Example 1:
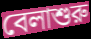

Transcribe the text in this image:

বেলাশুরু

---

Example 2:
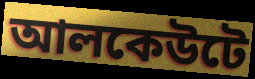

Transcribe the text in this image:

আলকেউটে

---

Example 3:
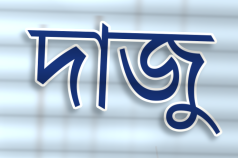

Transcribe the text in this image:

দাজু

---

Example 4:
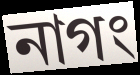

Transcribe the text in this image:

নাগং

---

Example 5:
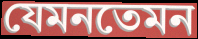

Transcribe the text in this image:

যেমনতেমন